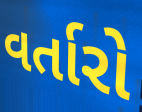
વર્તારો